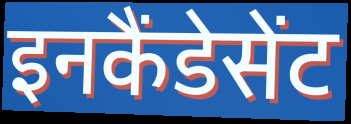
इनकैंडेसेंट